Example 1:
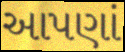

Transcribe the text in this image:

આપણાં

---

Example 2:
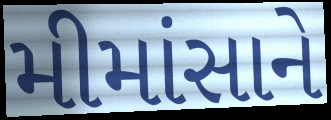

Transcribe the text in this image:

મીમાંસાને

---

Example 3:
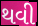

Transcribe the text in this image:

થવી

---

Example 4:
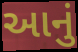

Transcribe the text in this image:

આનું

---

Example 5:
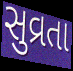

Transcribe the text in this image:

સુવ્રતા